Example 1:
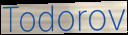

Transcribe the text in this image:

Todorov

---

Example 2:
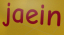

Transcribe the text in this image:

jaein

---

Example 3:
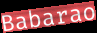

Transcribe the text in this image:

Babarao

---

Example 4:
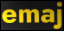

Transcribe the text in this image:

emaj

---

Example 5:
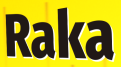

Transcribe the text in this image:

Raka